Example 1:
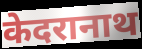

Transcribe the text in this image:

केदरानाथ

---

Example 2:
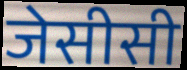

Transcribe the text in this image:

जेसीसी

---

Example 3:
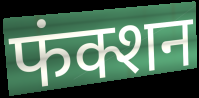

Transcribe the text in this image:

फंक्शन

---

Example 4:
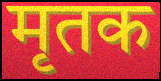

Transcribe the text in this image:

मृतक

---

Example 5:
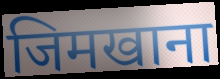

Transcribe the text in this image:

जिमखाना